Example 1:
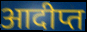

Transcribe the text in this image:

आदीप्त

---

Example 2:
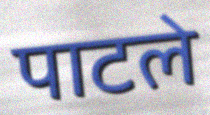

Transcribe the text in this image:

पाटले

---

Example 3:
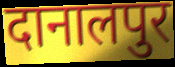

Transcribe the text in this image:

दानालपुर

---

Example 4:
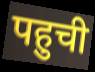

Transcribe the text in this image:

पहुची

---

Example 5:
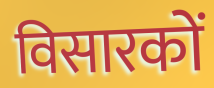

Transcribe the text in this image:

विसारकों